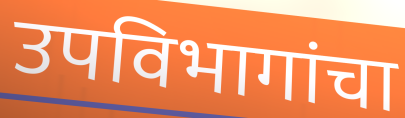
उपविभागांचा